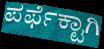
ಪರ್ಫೆಕ್ಟಾಗಿ